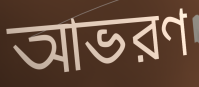
আভরণ